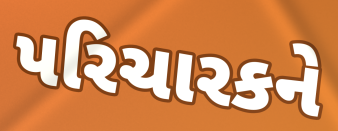
પરિચારકને